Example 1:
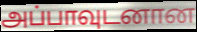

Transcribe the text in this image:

அப்பாவுடனான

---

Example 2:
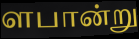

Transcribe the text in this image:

ளபான்று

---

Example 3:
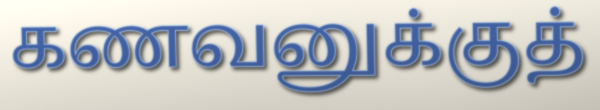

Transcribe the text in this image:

கணவனுக்குத்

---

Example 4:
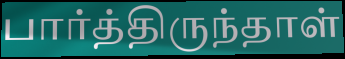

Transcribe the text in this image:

பார்த்திருந்தாள்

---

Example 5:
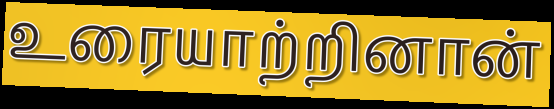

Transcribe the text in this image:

உரையாற்றினான்